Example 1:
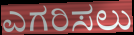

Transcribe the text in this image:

ಎಗರಿಸಲು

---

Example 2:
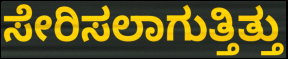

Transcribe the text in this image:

ಸೇರಿಸಲಾಗುತ್ತಿತ್ತು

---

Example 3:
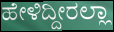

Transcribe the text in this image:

ಹೇಳಿದ್ದೀರಲ್ಲಾ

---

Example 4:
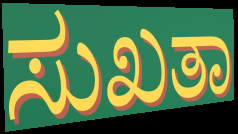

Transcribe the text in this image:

ಸುಖತಾ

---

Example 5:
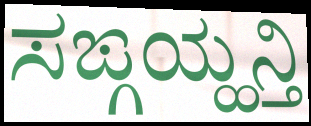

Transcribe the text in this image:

ಸಙ್ಗಯ್ಹನ್ತಿ